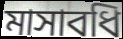
মাসাবধি